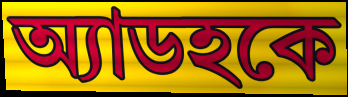
অ্যাডহকে